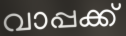
വാപ്പക്ക്